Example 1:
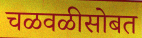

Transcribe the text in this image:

चळवळीसोबत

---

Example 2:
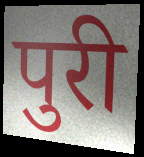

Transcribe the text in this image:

पुरी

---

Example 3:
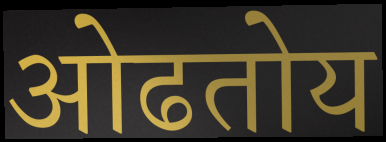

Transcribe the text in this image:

ओढतोय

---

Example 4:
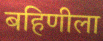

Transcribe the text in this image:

बहिणीला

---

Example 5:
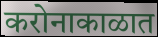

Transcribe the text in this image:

करोनाकाळात